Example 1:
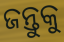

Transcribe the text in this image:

ଜନ୍ତୁକୁ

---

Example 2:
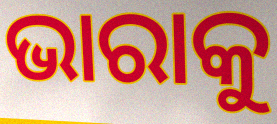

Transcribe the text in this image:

ଭାରାକୁ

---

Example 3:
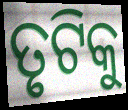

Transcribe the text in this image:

ତୃଟିକୁ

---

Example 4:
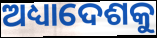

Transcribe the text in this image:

ଅଧ୍ୟାଦେଶକୁ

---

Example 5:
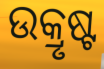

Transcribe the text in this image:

ଉକ୍ରୃଷ୍ଟ